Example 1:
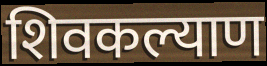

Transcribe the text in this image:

शिवकल्याण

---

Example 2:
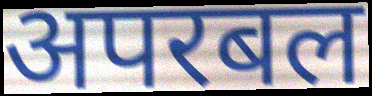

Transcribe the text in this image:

अपरबल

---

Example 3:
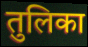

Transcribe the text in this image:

तुलिका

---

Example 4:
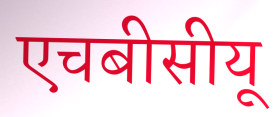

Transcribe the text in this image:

एचबीसीयू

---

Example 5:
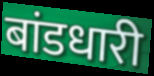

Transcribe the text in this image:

बांडधारी